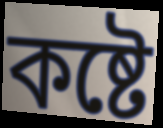
কষ্টে